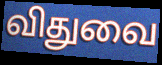
விதுவை